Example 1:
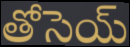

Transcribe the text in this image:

తోసెయ్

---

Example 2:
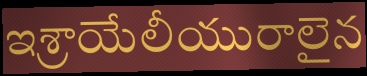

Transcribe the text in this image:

ఇశ్రాయేలీయురాలైన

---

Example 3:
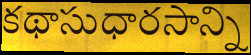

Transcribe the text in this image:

కథాసుధారసాన్ని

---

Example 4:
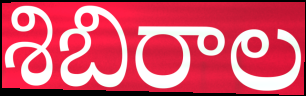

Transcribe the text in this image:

శిబిరాల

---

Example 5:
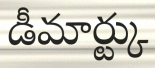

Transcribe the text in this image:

డీమార్ట్కు